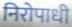
निरोपाधी